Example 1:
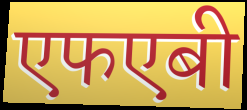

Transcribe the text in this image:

एफएबी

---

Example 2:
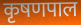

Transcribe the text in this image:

कृषणपाल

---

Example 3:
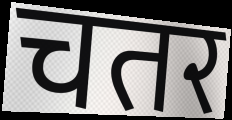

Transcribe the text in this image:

चतर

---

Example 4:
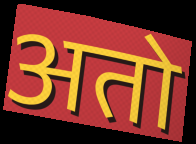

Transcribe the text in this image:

अतो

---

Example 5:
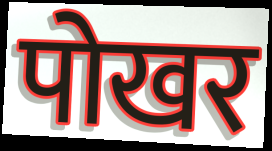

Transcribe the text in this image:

पोखर